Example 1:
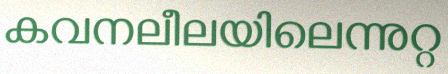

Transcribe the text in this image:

കവനലീലയിലെന്നുറ്റ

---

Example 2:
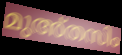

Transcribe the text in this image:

മുഅ്തസിം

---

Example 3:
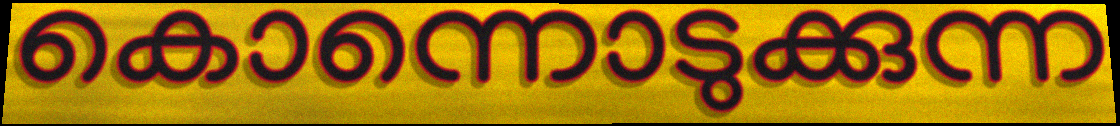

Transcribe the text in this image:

കൊന്നൊടുക്കുന്ന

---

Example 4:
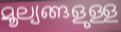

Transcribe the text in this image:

മൂല്യങ്ങളുള്ള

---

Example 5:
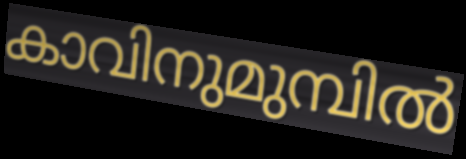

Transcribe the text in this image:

കാവിനുമുമ്പിൽ